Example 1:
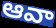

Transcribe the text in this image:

ఆవా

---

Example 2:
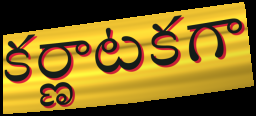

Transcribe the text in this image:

కర్ణాటకగా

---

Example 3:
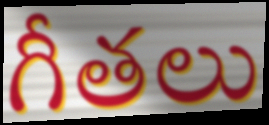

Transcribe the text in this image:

గీతలు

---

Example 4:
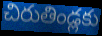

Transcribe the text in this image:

చిరుతిండ్లకు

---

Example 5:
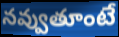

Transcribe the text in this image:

నవ్వుతూంటే